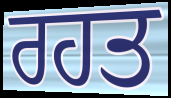
ਰਹਤ